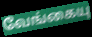
வேங்கையு